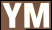
YM